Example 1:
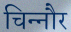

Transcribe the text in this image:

चिन्‍नौर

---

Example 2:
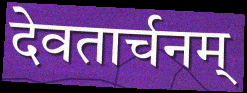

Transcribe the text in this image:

देवतार्चनम्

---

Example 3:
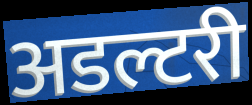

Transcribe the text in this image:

अडल्टरी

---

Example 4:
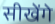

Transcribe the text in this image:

सीखेंगे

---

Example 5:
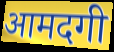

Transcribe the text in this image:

आमदगी